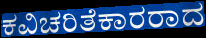
ಕವಿಚರಿತೆಕಾರರಾದ